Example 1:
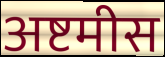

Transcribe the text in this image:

अष्टमीस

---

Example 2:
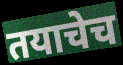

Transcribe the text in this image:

तयाचेच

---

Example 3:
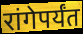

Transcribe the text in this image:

रांगेपर्यंत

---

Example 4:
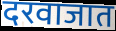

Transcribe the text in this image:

दरवाजात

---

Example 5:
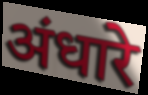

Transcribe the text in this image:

अंधारे